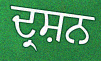
ਦ੍ਰਸ਼ਨ